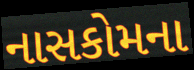
નાસકોમના